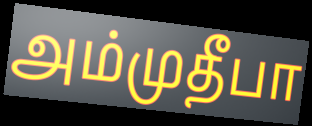
அம்முதீபா